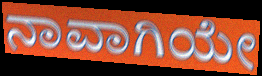
ನಾವಾಗಿಯೇ